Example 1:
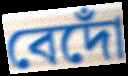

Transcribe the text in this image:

বেদোঁ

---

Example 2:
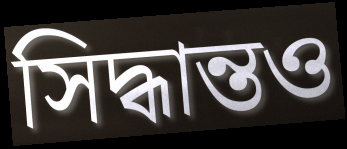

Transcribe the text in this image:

সিদ্ধান্তও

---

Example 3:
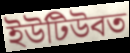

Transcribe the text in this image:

ইউটিউবত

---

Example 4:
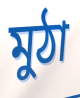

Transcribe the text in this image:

মুঠা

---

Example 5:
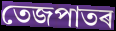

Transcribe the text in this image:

তেজপাতৰ